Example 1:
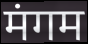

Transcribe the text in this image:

मंगम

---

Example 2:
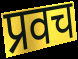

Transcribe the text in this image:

प्रवच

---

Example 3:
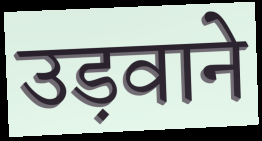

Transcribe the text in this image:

उड़वाने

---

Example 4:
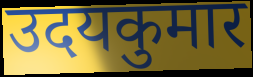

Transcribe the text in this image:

उदयकुमार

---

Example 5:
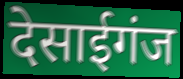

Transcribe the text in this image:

देसाईगंज